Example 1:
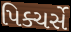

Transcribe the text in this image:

પિક્ચર્સે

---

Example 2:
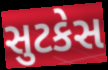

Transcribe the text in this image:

સુટકેસ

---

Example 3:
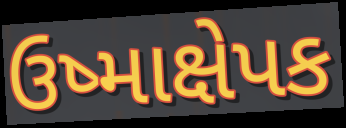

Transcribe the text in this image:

ઉષ્માક્ષેપક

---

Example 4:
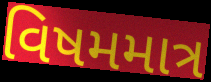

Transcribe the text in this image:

વિષમમાત્ર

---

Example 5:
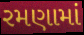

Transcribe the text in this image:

રમણામાં